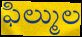
ఫిల్ముల